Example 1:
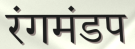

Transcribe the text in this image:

रंगमंडप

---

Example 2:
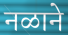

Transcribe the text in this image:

नळाने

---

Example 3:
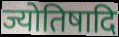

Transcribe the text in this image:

ज्योतिषादि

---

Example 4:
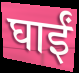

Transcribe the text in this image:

घाईं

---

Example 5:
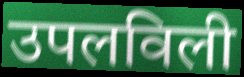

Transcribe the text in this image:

उपलविली